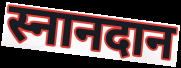
स्नानदान